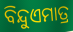
ବିନ୍ଦୁଏମାତ୍ର